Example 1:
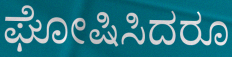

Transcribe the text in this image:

ಘೋಷಿಸಿದರೂ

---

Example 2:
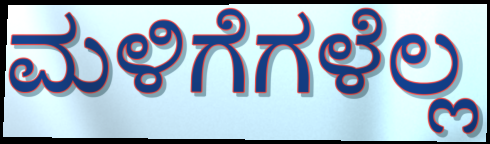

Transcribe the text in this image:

ಮಳಿಗೆಗಳೆಲ್ಲ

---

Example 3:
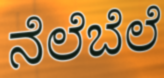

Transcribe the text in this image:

ನೆಲೆಬೆಲೆ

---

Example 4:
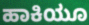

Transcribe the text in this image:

ಹಾಕಿಯೂ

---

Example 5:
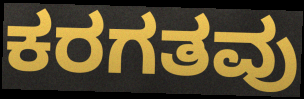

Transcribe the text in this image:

ಕರಗತವು